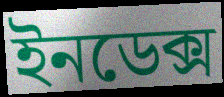
ইনডেক্স